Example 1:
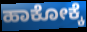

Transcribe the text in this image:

ಹಾಕೋಕ್ಕೆ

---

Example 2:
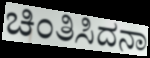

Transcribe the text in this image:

ಚಿಂತಿಸಿದನಾ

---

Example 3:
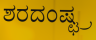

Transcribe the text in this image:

ಶರದಂಷ್ಟ್ರ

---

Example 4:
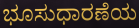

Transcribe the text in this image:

ಭೂಸುಧಾರಣೆಯ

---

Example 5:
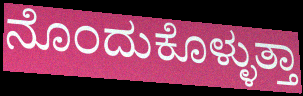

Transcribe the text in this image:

ನೊಂದುಕೊಳ್ಳುತ್ತಾ